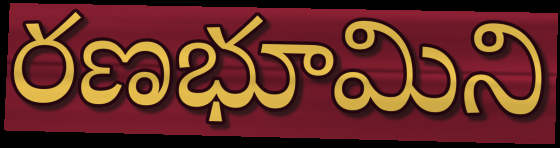
రణభూమిని